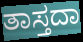
ತಾಸ್ತದಾ